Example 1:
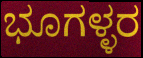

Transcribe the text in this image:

ಭೂಗಳ್ಳರ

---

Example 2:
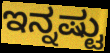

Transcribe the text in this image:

ಇನ್ನಷ್ಟು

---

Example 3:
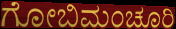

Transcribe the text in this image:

ಗೋಬಿಮಂಚೂರಿ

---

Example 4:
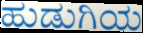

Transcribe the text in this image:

ಹುಡುಗಿಯ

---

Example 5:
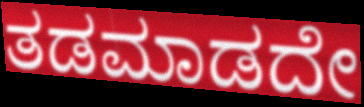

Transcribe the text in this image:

ತಡಮಾಡದೇ